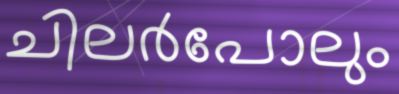
ചിലർപോലും